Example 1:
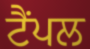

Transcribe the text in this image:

ਟੈਂਪਲ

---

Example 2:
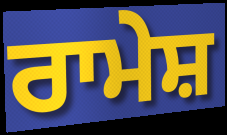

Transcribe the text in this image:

ਰਾਮੇਸ਼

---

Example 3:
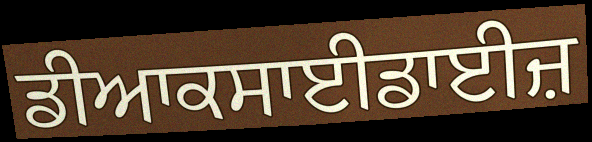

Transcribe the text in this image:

ਡੀਆਕਸਾਈਡਾਈਜ਼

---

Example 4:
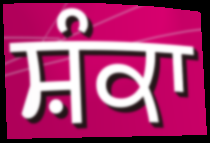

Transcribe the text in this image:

ਸ਼ੰਕਾ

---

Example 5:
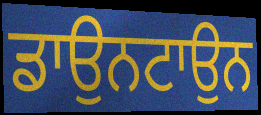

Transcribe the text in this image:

ਡਾਉਨਟਾਉਨ